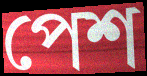
পেশ